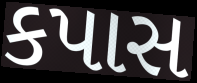
કપાસ